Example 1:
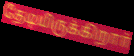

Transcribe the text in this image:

தேடியிருக்கிறார்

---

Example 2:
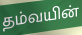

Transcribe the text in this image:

தம்வயின்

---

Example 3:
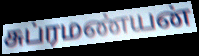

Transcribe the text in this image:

சுப்ரமண்யன்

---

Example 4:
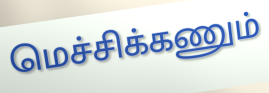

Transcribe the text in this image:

மெச்சிக்கணும்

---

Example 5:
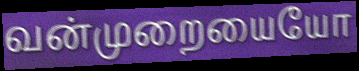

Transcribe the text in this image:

வன்முறையையோ